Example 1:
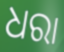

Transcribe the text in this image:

ଧରା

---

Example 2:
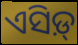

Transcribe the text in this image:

ଏସିଡ଼୍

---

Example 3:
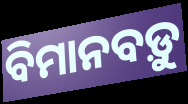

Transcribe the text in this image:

ବିମାନବଡ଼ୁ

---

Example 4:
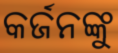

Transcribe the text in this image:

କର୍ଜନଙ୍କୁ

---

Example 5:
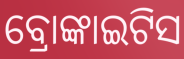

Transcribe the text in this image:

ବ୍ରୋଙ୍କାଇଟିସ